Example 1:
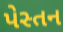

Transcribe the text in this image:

પેસ્તન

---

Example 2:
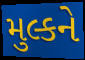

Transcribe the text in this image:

મુલ્કને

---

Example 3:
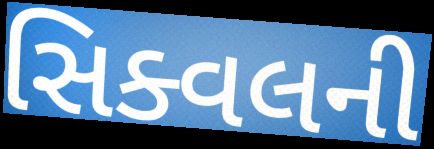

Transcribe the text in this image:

સિક્વલની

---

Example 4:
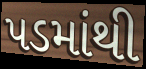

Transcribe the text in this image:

પડમાંથી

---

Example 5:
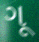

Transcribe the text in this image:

ગૂ